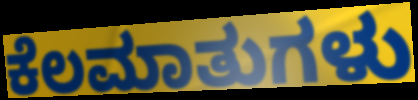
ಕೆಲಮಾತುಗಳು